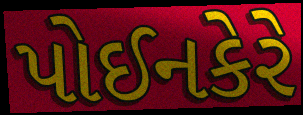
પોઈનકેરે